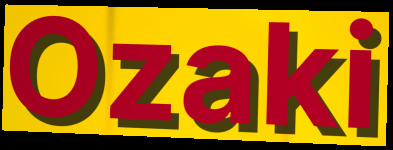
Ozaki